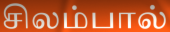
சிலம்பால்